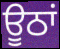
ਊਠਾਂ